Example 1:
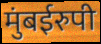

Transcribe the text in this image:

मुंबईरुपी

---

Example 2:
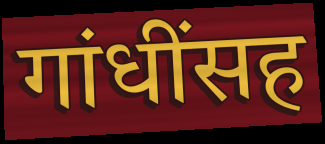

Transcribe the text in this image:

गांधींसह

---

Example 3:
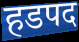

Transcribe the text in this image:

हडपद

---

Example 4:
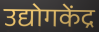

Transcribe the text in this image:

उद्योगकेंद्र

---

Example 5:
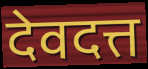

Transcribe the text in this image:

देवदत्त